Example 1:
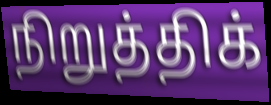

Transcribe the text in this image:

நிறுத்திக்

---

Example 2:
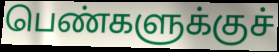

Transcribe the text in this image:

பெண்களுக்குச்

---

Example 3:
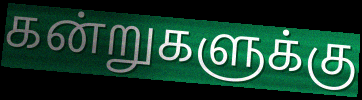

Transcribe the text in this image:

கன்றுகளுக்கு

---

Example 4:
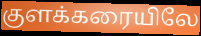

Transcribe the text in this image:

குளக்கரையிலே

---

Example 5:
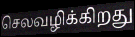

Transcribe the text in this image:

செலவழிக்கிறது